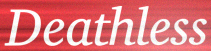
Deathless